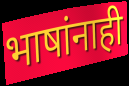
भाषांनाही